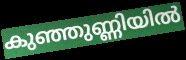
കുഞ്ഞുണ്ണിയിൽ